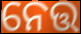
ନେତ୍ତ